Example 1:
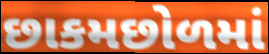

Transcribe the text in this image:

છાકમછોળમાં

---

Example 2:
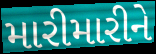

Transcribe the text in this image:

મારીમારીને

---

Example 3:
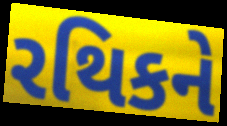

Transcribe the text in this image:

રથિકને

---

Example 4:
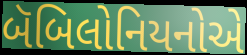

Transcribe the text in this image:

બૅબિલોનિયનોએ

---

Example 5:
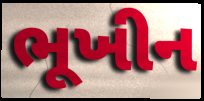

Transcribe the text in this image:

ભૂખીન